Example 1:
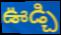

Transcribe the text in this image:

ఊడ్చి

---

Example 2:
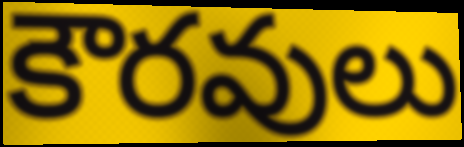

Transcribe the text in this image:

కౌరవులు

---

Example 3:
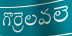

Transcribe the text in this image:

గొర్రెలవలె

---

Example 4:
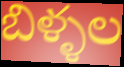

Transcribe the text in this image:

బిళ్ళల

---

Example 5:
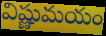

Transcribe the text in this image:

విష్ణుమయం